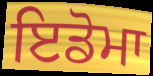
ਇਡੋਮਾ